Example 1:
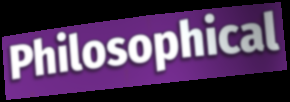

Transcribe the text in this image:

Philosophical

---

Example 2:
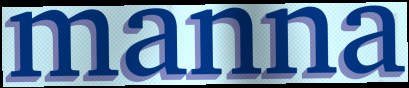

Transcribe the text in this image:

manna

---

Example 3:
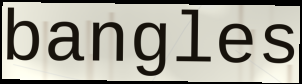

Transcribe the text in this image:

bangles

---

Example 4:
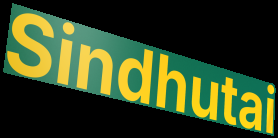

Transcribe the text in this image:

Sindhutai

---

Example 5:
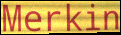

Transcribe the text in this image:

Merkin